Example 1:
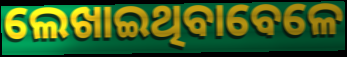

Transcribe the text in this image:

ଲେଖାଇଥିବାବେଳେ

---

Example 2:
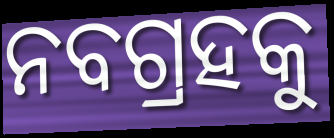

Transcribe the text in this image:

ନବଗ୍ରହକୁ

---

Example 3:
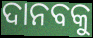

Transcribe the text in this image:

ଦାନବକୁ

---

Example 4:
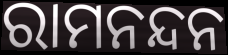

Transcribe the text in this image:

ରାମନନ୍ଦନ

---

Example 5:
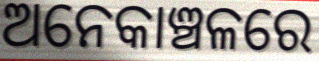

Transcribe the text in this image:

ଅନେକାଞ୍ଚଳରେ